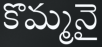
కొమ్మనై